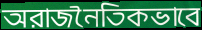
অরাজনৈতিকভাবে